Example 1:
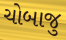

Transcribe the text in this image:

ચોબાજુ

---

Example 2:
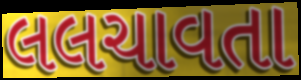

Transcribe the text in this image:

લલચાવતા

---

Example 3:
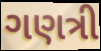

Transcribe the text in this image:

ગણત્રી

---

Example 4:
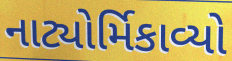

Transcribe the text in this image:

નાટ્યોર્મિકાવ્યો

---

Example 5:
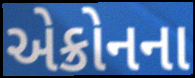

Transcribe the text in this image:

એક્રોનના